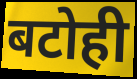
बटोही